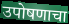
उपोषणाचा